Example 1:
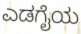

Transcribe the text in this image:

ಎಡಗೈಯ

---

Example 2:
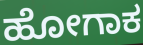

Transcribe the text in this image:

ಹೋಗಾಕ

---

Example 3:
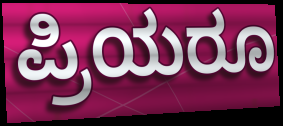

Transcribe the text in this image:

ಪ್ರಿಯರೂ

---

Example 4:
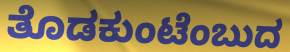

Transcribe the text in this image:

ತೊಡಕುಂಟೆಂಬುದ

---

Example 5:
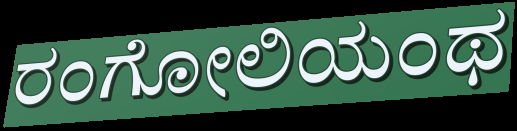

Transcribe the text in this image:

ರಂಗೋಲಿಯಂಥ